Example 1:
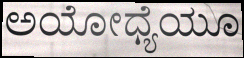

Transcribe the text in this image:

ಅಯೋಧ್ಯೆಯೂ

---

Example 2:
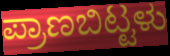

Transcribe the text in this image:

ಪ್ರಾಣಬಿಟ್ಟಳು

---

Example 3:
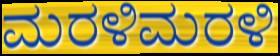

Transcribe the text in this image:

ಮರಳಿಮರಳಿ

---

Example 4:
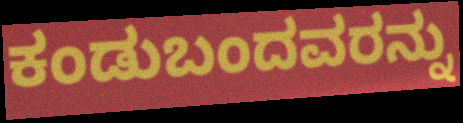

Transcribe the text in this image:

ಕಂಡುಬಂದವರನ್ನು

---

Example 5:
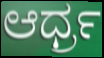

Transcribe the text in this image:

ಆರ್ಧ್ರ